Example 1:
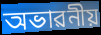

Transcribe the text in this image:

অভাৱনীয়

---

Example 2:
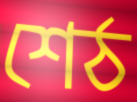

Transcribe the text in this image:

শেঠ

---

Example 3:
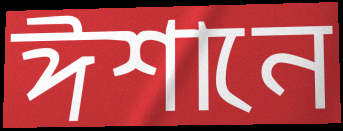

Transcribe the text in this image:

ঈশানে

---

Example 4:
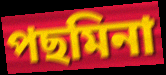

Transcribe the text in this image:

পছমিনা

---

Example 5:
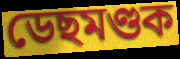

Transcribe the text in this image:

ডেছমণ্ডক